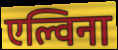
एल्विना